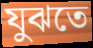
যুঝতে